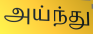
அய்ந்து